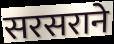
सरसराने